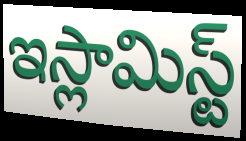
ఇస్లామిస్ట్